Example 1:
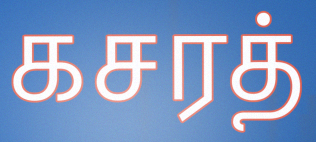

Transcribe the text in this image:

கசரத்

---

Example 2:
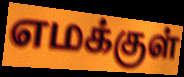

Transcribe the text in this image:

எமக்குள்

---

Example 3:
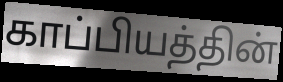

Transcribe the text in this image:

காப்பியத்தின்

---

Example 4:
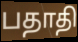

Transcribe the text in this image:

பதாதி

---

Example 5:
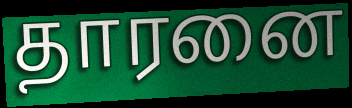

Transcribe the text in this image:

தாரனை